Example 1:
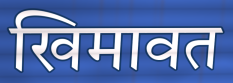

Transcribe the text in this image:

खिमावत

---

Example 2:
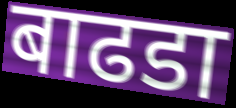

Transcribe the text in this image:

बाढडा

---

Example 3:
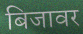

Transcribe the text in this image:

बिजावर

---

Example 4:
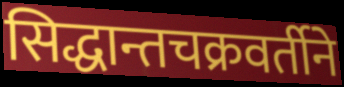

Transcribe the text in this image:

सिद्धान्तचक्रवर्तीने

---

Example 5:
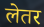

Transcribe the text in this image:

लेतर